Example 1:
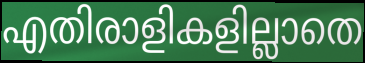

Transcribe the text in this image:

എതിരാളികളില്ലാതെ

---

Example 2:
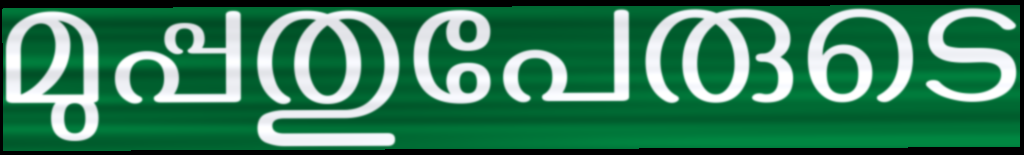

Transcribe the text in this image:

മുപ്പതുപേരുടെ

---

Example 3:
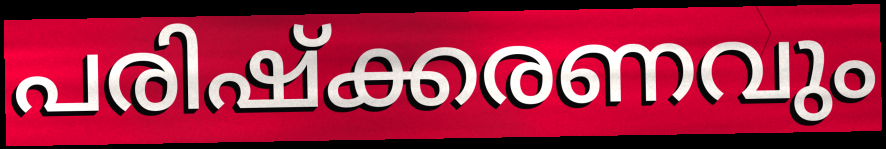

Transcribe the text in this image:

പരിഷ്ക്കരണവും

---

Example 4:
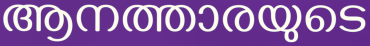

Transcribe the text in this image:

ആനത്താരയുടെ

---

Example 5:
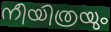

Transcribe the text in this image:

നീയിത്രയും